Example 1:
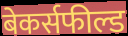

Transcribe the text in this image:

बेकर्सफील्ड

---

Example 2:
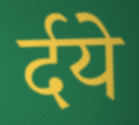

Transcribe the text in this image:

र्दये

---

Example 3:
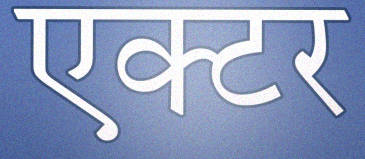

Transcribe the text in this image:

एक्टर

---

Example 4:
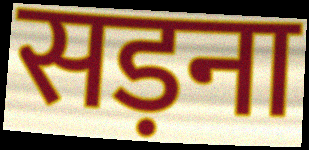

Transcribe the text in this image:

सड़ना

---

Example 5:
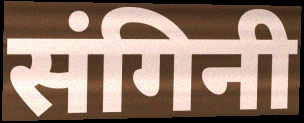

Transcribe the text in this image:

संगिनी